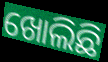
ଖୋଲିଛି